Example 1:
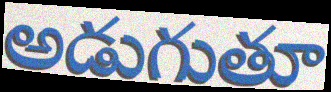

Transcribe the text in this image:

అడుగుతూ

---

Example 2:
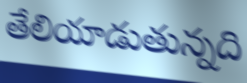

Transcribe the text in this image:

తేలియాడుతున్నది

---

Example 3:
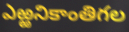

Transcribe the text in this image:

ఎఱ్ఱనికాంతిగల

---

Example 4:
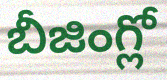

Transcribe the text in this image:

బీజింగ్లో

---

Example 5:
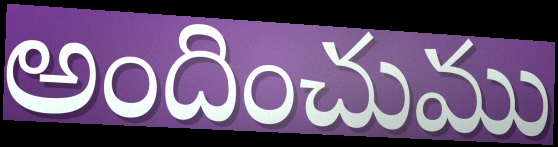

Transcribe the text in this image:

అందించుము